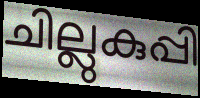
ചില്ലുകുപ്പി